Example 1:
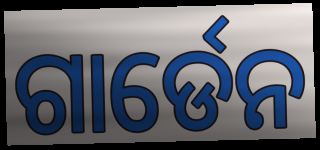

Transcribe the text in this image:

ଗାର୍ଡେନ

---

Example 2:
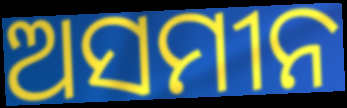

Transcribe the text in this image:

ଅସମୀନ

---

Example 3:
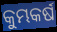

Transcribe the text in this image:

କୁମ୍ଭକର୍ଷ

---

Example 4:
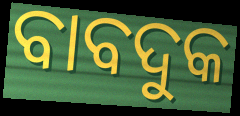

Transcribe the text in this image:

ବାବଦୁକ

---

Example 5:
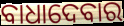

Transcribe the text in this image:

ବାଧାଦେବାର